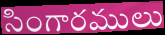
సింగారములు